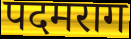
पदमराग